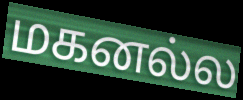
மகனல்ல